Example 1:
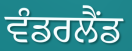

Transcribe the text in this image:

ਵੰਡਰਲੈਂਡ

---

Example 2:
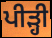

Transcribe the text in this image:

ਪੀੜ੍ਹੀ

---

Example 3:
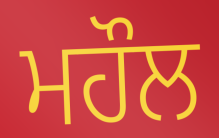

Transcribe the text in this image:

ਮਹੌਲ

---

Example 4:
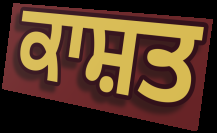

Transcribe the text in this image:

ਕਾਸ਼ਤ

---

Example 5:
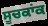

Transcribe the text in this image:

ਸੂਚਕਾਂਕ